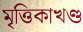
মৃত্তিকাখণ্ড